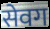
सेवग